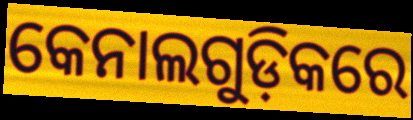
କେନାଲଗୁଡ଼ିକରେ